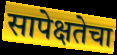
सापेक्षतेचा